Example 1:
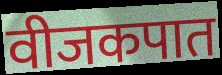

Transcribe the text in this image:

वीजकपात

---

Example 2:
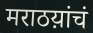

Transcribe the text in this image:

मराठय़ांचं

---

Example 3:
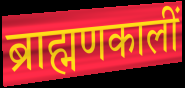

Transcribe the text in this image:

ब्राह्मणकालीं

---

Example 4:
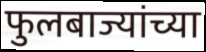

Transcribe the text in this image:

फुलबाज्यांच्या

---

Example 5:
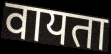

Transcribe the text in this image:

वायता